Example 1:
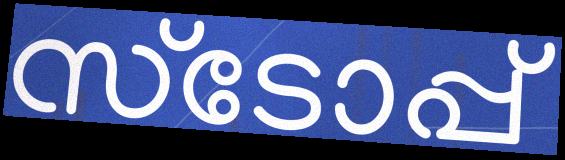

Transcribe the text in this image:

സ്ടോപ്പ്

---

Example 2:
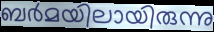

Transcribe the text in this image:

ബർമയിലായിരുന്നു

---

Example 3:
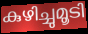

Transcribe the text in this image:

കുഴിച്ചുമൂടി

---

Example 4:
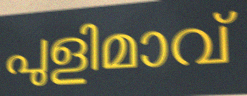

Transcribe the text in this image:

പുളിമാവ്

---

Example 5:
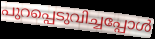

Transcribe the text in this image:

പുറപ്പെടുവിച്ചപ്പോൾ